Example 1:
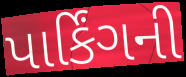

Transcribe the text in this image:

પાર્કિંગની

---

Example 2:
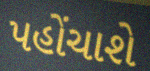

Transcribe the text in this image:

પહોંચાશે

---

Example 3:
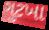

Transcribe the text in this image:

ગુટખા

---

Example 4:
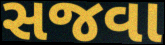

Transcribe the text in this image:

સજવા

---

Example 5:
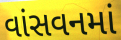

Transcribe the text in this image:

વાંસવનમાં